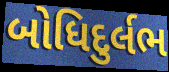
બોધિદુર્લભ